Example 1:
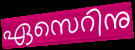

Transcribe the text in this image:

ഏസെറിനു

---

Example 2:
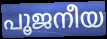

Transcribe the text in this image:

പൂജനീയ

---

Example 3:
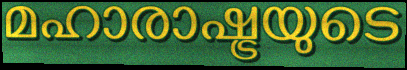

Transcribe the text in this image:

മഹാരാഷ്ട്രയുടെ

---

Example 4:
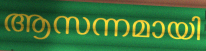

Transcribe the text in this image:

ആസന്നമായി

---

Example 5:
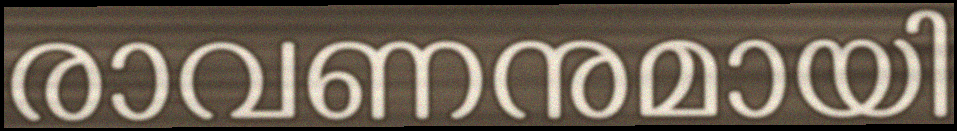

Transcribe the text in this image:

രാവണനുമായി